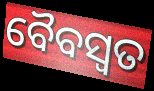
ବୈବସ୍ଵତ